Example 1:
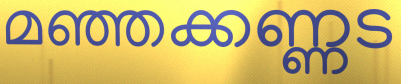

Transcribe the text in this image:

മഞ്ഞക്കണ്ണട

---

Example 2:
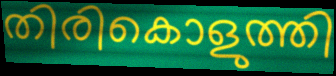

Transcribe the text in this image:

തിരികൊളുത്തി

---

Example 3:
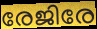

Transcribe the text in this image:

രേജിരേ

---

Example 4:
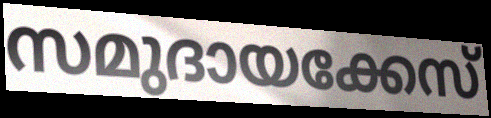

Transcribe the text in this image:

സമുദായക്കേസ്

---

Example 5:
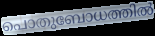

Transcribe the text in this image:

പൊതുബോധത്തിൽ